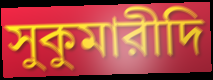
সুকুমারীদি